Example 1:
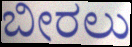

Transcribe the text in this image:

ಬೀರಲು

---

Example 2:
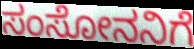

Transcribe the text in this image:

ಸಂಸೋನನಿಗೆ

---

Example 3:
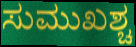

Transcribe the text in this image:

ಸುಮುಖಶ್ಚ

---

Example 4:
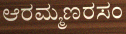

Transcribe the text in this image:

ಆರಮ್ಮಣರಸಂ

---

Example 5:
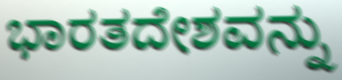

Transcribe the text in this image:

ಭಾರತದೇಶವನ್ನು